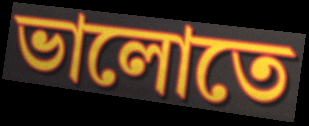
ভালোতে